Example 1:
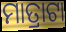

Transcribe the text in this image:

ମାତ୍ରାଟା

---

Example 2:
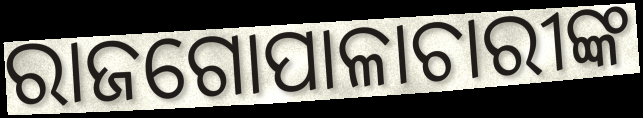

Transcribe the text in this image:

ରାଜଗୋପାଳାଚାରୀଙ୍କ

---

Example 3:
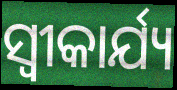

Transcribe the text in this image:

ସ୍ୱୀକାର୍ଯ୍ୟ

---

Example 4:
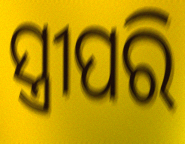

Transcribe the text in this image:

ସ୍ତ୍ରୀପରି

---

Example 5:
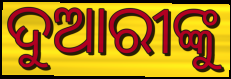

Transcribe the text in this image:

ଦୁଆରୀଙ୍କୁ